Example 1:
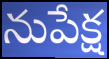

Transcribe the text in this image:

నుపేక్ష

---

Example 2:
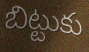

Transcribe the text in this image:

బిట్టుకు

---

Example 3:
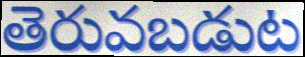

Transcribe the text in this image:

తెరువబడుట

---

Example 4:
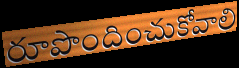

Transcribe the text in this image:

రూపొందించుకోవాలి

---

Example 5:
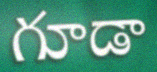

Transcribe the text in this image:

గూడా